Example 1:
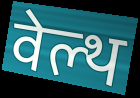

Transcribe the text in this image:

वेल्‍थ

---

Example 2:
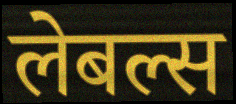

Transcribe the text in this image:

लेबल्स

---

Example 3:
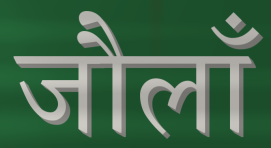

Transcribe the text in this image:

जौलाँ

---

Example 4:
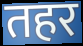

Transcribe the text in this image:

तहर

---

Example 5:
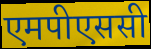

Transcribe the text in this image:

एमपीएससी